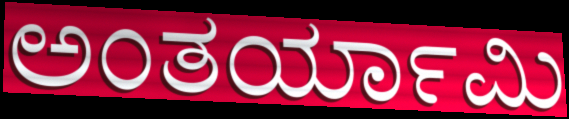
ಅಂತರ್ಯಾಮಿ